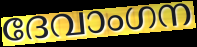
ദേവാംഗന